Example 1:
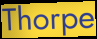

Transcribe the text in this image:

Thorpe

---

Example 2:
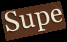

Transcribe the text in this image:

Supe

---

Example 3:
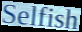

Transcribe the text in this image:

Selfish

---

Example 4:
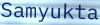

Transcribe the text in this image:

Samyukta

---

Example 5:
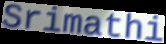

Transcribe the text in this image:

Srimathi